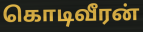
கொடிவீரன்